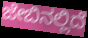
ಜೇಬಿನಲ್ಲಿದೆ